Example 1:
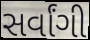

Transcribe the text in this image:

સર્વાંગી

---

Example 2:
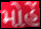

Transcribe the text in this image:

મોહેં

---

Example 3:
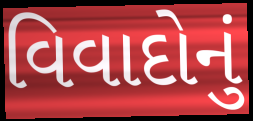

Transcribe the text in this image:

વિવાદોનું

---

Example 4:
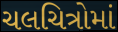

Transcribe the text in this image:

ચલચિત્રોમાં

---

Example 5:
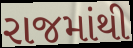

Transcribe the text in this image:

રાજમાંથી